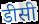
डीसी